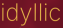
idyllic